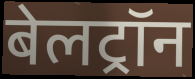
बेलट्रॉन